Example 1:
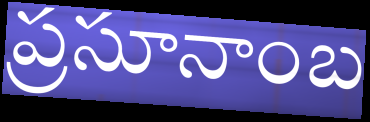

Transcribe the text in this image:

ప్రసూనాంబ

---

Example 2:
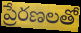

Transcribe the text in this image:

ప్రేరణలతో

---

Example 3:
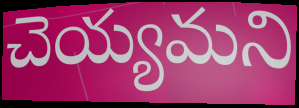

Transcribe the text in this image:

చెయ్యమని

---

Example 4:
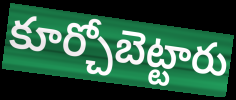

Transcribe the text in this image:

కూర్చోబెట్టారు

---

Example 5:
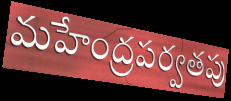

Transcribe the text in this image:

మహేంద్రపర్వతపు